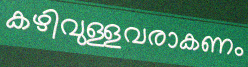
കഴിവുള്ളവരാകണം